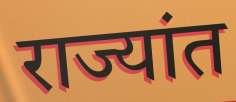
राज्यांत